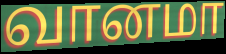
வானமா